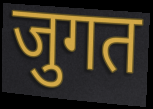
जुगत